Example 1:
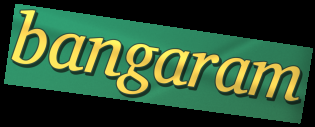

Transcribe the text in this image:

bangaram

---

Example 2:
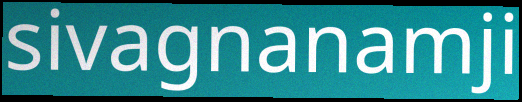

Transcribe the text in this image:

sivagnanamji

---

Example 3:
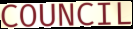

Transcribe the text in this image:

COUNCIL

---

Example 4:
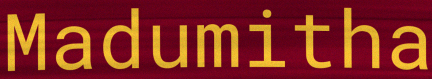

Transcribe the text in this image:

Madumitha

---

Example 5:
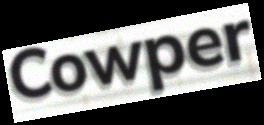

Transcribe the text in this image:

Cowper